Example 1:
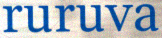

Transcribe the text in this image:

ruruva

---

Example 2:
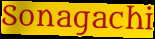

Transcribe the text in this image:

Sonagachi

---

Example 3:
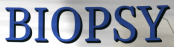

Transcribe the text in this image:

BIOPSY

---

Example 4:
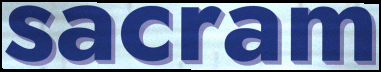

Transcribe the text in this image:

sacram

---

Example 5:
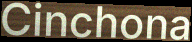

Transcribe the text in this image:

Cinchona